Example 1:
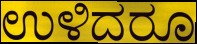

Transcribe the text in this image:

ಉಳಿದರೂ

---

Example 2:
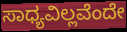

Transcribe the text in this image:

ಸಾಧ್ಯವಿಲ್ಲವೆಂದೇ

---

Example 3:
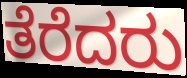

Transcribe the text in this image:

ತೆರೆದರು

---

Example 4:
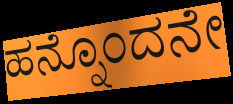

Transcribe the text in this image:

ಹನ್ನೊಂದನೇ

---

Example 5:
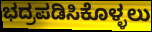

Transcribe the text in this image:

ಭದ್ರಪಡಿಸಿಕೊಳ್ಳಲು